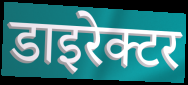
डाइरेक्टर